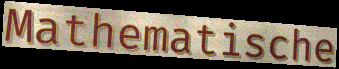
Mathematische